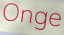
Onge